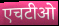
एचटीओ